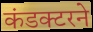
कंडक्टरने